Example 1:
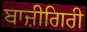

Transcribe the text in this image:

ਬਾਜ਼ੀਗਿਰੀ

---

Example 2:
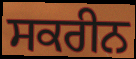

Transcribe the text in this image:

ਸਕਰੀਨ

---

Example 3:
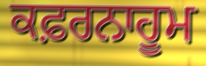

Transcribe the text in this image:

ਕਫ਼ਰਨਾਹੂਮ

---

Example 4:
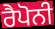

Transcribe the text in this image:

ਰੈਪੋਨੀ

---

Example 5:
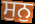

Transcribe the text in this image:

ਸੁਨੁ